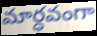
మార్ధవంగా